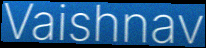
Vaishnav